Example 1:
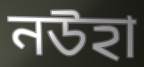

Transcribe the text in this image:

নউহা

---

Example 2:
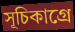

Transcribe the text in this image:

সূচিকাগ্রে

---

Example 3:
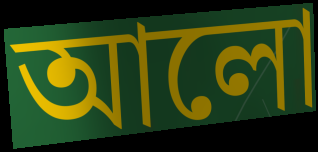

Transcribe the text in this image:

আলো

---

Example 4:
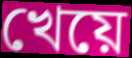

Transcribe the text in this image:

খেয়ে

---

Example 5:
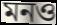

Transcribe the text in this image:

মনও